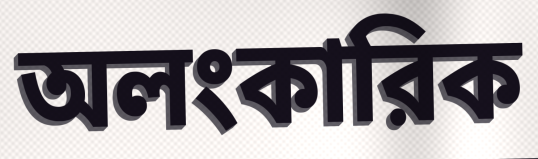
অলংকারিক